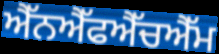
ਐੱਨਐੱਫਐੱਚਐੱਮ